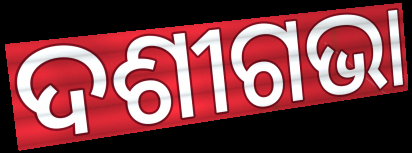
ଦଶୀଗଭା